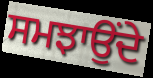
ਸਮਝਾਉੰਦੇ